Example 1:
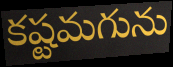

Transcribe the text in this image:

కష్టమగును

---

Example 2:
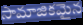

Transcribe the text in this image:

సామాజికమైన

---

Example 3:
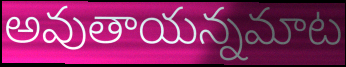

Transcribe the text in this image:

అవుతాయన్నమాట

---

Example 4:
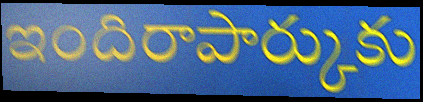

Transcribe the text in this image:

ఇందిరాపార్కుకు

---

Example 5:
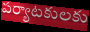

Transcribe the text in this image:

పర్యాటకులకు